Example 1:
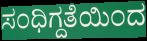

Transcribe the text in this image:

ಸಂಧಿಗ್ದತೆಯಿಂದ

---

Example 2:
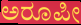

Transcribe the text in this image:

ಅರೂಪೀ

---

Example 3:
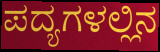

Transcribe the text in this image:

ಪದ್ಯಗಳಲ್ಲಿನ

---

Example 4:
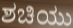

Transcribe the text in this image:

ಶಚಿಯು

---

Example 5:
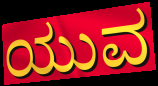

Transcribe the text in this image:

ಯುವ